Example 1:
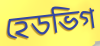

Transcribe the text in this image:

হেডভিগ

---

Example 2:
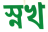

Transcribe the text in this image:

স্নখ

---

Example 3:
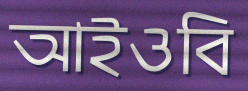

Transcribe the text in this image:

আইওবি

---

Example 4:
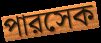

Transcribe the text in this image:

পারসেক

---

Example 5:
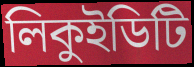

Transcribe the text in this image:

লিকুইডিটি